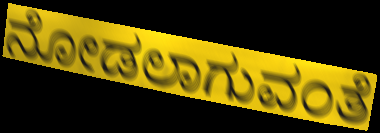
ನೋಡಲಾಗುವಂತೆ